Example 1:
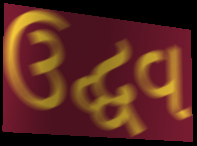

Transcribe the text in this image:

ઉદ્ઘવ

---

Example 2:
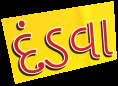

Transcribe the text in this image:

દંડવા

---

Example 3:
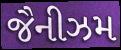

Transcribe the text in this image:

જૈનીઝમ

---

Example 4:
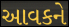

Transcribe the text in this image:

આવકને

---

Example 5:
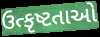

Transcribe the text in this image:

ઉત્કૃષ્ટતાઓ